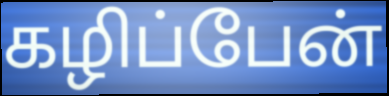
கழிப்பேன்